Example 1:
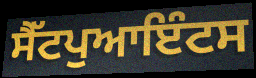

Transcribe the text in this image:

ਸੈੱਟਪੁਆਇੰਟਸ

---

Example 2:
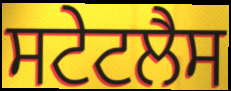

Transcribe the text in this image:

ਸਟੇਟਲੈਸ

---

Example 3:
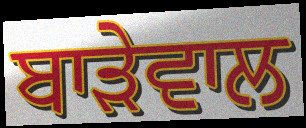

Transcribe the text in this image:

ਬਾੜੇਵਾਲ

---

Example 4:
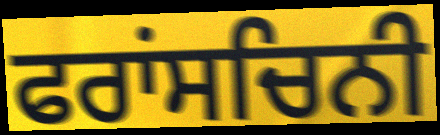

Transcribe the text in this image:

ਫਰਾਂਸਚਿਨੀ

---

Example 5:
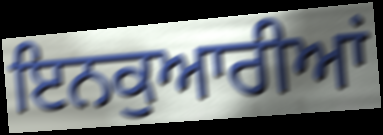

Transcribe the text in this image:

ਇਨਕੁਆਰੀਆਂ